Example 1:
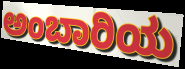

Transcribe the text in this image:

ಅಂಬಾರಿಯ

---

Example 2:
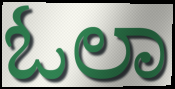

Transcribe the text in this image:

ಓಲಾ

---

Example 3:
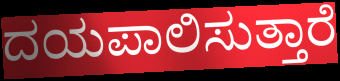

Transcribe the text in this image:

ದಯಪಾಲಿಸುತ್ತಾರೆ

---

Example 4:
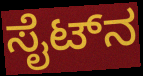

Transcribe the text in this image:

ಸೈಟ್‌ನ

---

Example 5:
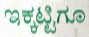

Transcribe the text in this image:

ಇಕ್ಕಟ್ಟಿಗೂ